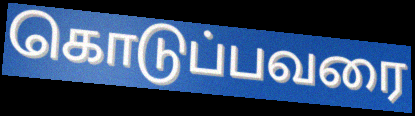
கொடுப்பவரை